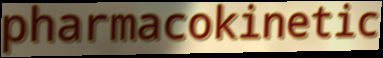
pharmacokinetic